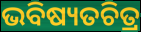
ଭବିଷ୍ୟତଚିତ୍ର